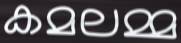
കമലമ്മ